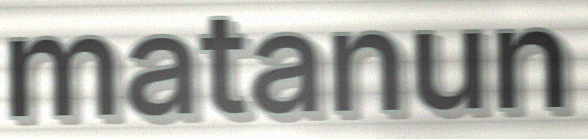
matanun